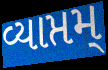
વ્યાપ્તમ્